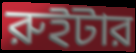
রুইটার